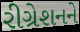
રીગ્રેશનને